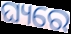
ଘ୍ୟରେ